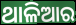
ଥାଳିଆର